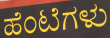
ಹೆಂಟೆಗಳು